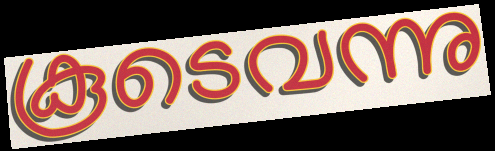
കൂടെവന്നു